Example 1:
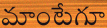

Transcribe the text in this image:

మాంటేగూ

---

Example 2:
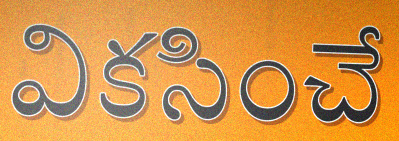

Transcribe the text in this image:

వికసించే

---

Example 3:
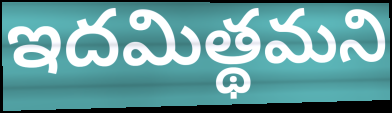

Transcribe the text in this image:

ఇదమిత్థమని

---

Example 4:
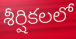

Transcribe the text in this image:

శీర్షికలలో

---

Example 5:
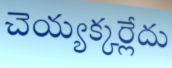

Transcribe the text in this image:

చెయ్యక్కర్లేదు